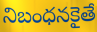
నిబంధనకైతే